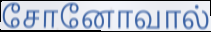
சோனோவால்